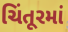
ચિંતૂરમાં